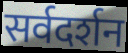
सर्वदर्शन